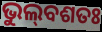
ଭୁଲ୍‌ବଶତଃ